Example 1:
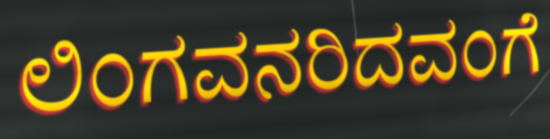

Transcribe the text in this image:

ಲಿಂಗವನರಿದವಂಗೆ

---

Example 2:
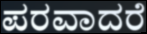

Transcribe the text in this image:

ಪರವಾದರೆ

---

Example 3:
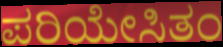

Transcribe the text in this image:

ಪರಿಯೇಸಿತಂ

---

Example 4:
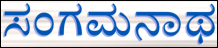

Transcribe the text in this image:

ಸಂಗಮನಾಥ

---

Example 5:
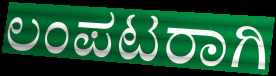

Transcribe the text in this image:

ಲಂಪಟರಾಗಿ